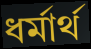
ধর্মার্থ